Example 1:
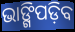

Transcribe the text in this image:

ଭାଙ୍ଗିପଡ଼ିବ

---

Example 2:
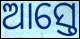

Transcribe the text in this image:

ଆସ୍ତେ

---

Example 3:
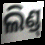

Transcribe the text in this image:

ଲିଣ୍ଡ୍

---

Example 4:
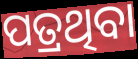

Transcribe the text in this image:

ପତ୍ରଥିବା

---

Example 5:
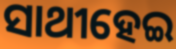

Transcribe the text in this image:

ସାଥୀହେଇ